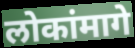
लोकांमागे